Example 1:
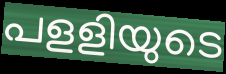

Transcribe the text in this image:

പളളിയുടെ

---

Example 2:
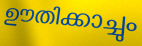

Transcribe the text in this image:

ഊതിക്കാച്ചും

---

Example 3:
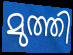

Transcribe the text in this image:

മുത്തി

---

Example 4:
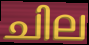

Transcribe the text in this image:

ചില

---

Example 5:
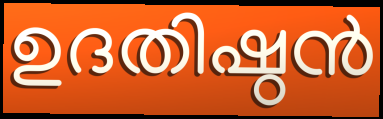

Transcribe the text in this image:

ഉദതിഷ്ഠൻ